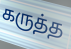
கருத்த